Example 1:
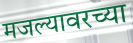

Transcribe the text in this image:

मजल्यावरच्या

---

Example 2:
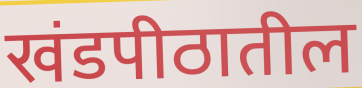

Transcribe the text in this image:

खंडपीठातील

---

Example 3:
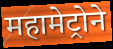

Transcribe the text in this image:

महामेट्रोने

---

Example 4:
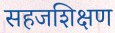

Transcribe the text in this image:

सहजशिक्षण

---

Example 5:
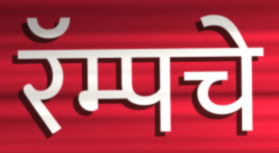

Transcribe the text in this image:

रॅम्पचे